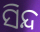
ସିନ୍ଦ